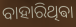
ବାହାରିଥିଵା